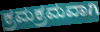
ಕ್ರಮಕ್ರಮವಾಗಿ